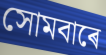
সোমবাৰে